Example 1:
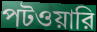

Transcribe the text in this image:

পটওয়ারি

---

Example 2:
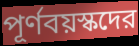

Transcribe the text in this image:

পূর্ণবয়স্কদের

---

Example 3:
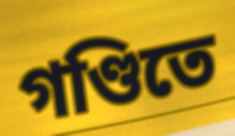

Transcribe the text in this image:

গণ্ডিতে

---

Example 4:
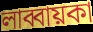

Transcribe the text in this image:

লাব্বায়কা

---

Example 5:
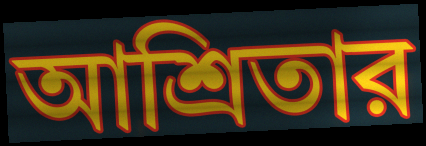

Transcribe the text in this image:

আশ্রিতার